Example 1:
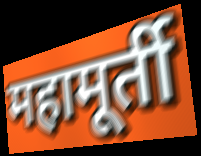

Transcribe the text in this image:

महामूर्ती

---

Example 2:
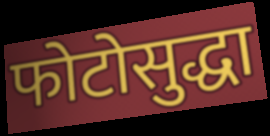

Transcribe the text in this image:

फोटोसुद्धा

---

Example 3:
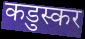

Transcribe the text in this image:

कडुस्कर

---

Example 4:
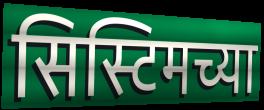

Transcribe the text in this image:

सिस्टिमच्या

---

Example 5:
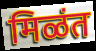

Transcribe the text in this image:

मिळंत